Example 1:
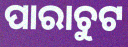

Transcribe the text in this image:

ପାରାଚୁଟ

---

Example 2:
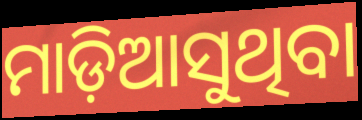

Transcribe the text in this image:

ମାଡ଼ିଆସୁଥିବା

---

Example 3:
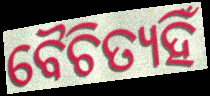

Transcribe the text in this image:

ବୈଚିତ୍ୟହିଁ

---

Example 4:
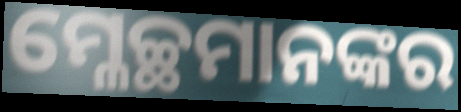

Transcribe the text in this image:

ମ୍ଳେଚ୍ଛମାନଙ୍କର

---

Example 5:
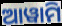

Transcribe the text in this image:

ଆୱାମି